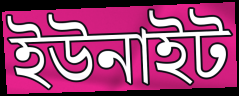
ইউনাইট